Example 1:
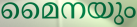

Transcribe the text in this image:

മൈനയും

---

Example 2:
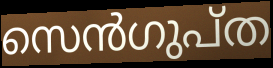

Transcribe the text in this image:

സെൻഗുപ്ത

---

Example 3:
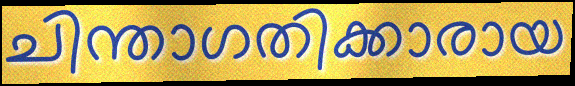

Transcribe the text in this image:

ചിന്താഗതിക്കാരായ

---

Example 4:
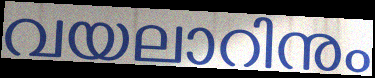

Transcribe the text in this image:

വയലാറിനും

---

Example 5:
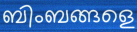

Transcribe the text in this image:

ബിംബങ്ങളെ